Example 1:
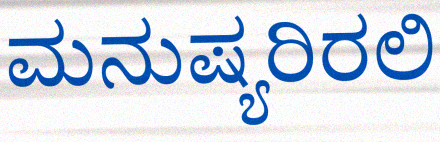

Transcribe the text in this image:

ಮನುಷ್ಯರಿರಲಿ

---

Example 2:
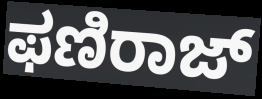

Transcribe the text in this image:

ಫಣಿರಾಜ್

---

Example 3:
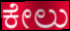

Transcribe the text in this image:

ಕೇಲು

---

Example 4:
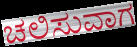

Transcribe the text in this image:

ಚಲಿಸುವಾಗ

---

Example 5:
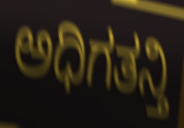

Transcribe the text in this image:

ಅಧಿಗತನ್ತಿ